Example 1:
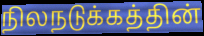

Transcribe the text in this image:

நிலநடுக்கத்தின்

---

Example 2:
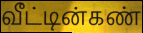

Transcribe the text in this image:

வீட்டின்கண்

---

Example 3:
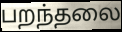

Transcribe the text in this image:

பறந்தலை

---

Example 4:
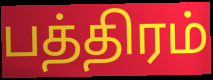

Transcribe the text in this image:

பத்திரம்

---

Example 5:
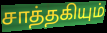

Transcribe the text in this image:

சாத்தகியும்